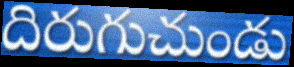
దిరుగుచుండు